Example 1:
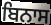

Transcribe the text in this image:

ਬਿਨਾਸ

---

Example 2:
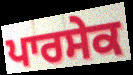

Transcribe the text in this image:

ਪਾਰਸੇਕ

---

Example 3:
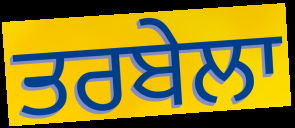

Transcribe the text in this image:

ਤਰਬੇਲਾ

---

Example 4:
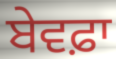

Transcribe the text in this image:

ਬੇਵਫ਼ਾ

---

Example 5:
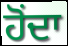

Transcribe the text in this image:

ਹੋਂਦਾ